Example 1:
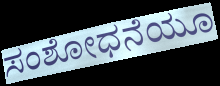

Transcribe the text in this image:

ಸಂಶೋಧನೆಯೂ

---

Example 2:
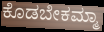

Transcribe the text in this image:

ಕೊಡಬೇಕಮ್ಮಾ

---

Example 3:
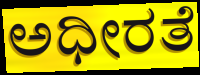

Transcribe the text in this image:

ಅಧೀರತೆ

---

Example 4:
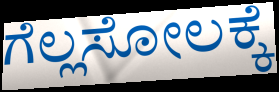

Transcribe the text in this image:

ಗೆಲ್ಲಸೋಲಕ್ಕೆ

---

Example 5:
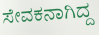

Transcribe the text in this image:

ಸೇವಕನಾಗಿದ್ದ